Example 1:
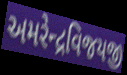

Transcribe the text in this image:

અમરેન્દ્રવિજયજી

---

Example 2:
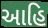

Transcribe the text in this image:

આહિ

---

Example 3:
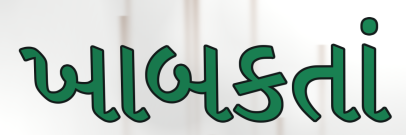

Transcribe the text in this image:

ખાબકતાં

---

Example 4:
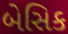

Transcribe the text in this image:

બેસિક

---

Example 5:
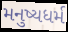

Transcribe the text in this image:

મનુષ્યધર્મ